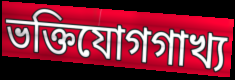
ভক্তিযোগগাখ্য